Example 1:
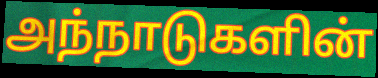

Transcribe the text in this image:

அந்நாடுகளின்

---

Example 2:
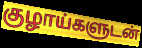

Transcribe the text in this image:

குழாய்களுடன்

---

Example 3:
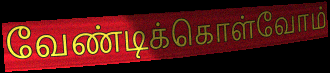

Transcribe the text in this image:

வேண்டிக்கொள்வோம்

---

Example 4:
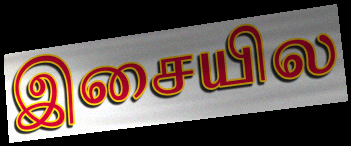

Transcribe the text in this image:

இசையில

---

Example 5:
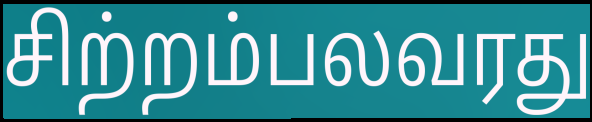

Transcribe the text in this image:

சிற்றம்பலவரது